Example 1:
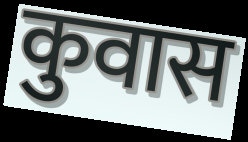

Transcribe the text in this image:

कुवास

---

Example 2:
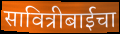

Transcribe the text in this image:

सावित्रीबाईचा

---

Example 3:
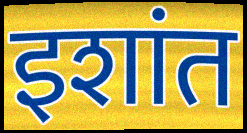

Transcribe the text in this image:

इशांत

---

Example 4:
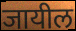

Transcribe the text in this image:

जायील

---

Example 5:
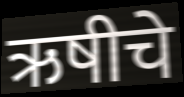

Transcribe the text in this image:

ऋषीचे